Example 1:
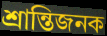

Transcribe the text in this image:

শ্রান্তিজনক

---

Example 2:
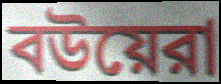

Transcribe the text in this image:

বউয়েরা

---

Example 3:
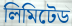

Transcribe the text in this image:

লিমিটেড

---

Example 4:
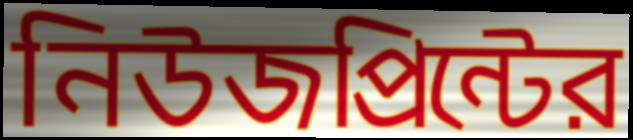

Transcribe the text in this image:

নিউজপ্রিন্টের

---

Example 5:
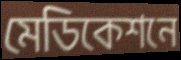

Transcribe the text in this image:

মেডিকেশনে